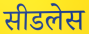
सीडलेस